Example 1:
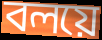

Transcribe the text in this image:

বলয়ে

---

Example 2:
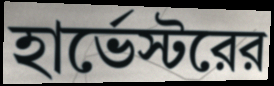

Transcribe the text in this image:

হার্ভেস্টরের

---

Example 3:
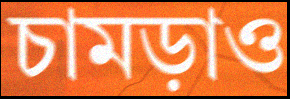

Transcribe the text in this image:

চামড়াও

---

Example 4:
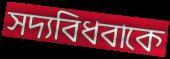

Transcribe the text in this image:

সদ্যবিধবাকে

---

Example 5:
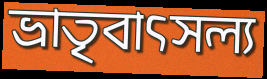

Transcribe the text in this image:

ভ্রাতৃবাৎসল্য